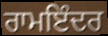
ਰਾਮਇੰਦਰ